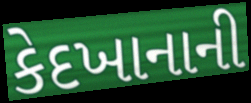
કેદખાનાની